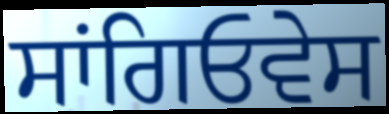
ਸਾਂਗਿਓਵੇਸ